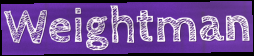
Weightman